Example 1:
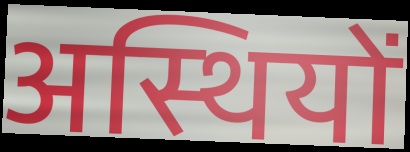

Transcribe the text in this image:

अस्थियों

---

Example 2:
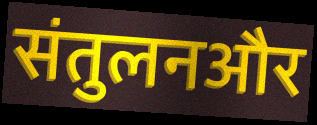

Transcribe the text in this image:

संतुलनऔर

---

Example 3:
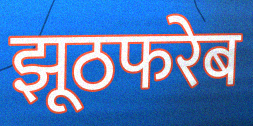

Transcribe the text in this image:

झूठफरेब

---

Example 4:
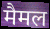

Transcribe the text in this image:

मैमल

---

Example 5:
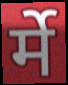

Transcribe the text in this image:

र्मे